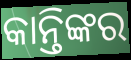
କାନ୍ତିଙ୍କର